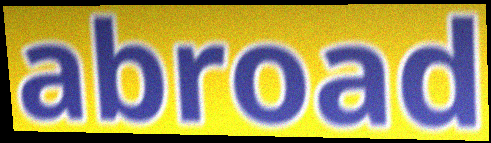
abroad